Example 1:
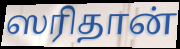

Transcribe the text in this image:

ஸரிதான்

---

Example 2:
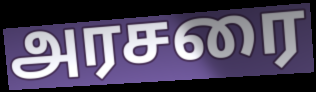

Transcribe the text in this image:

அரசரை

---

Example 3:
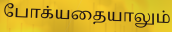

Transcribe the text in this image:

போக்யதையாலும்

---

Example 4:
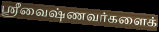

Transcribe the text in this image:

ஸ்ரீவைஷ்ணவர்களைக்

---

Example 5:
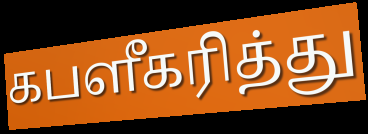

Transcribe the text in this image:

கபளீகரித்து